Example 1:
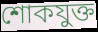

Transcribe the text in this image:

শোকযুক্ত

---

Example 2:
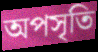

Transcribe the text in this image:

অপসৃতি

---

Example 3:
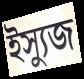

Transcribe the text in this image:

ইস্যুজ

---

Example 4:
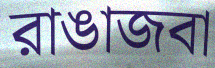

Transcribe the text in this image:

রাঙাজবা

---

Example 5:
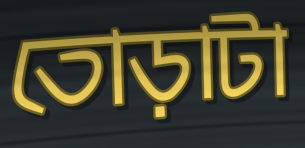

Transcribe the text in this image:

তোড়াটা